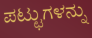
ಪಟ್ಟುಗಳನ್ನು